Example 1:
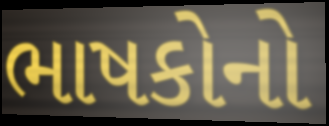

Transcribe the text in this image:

ભાષકોનો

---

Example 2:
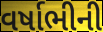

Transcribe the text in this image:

વર્ષાભીની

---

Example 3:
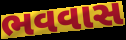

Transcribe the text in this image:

ભવવાસ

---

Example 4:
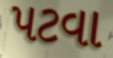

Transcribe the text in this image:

પટવા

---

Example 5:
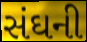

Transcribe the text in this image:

સંઘની